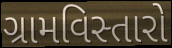
ગ્રામવિસ્તારો